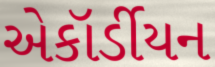
એકૉર્ડીયન